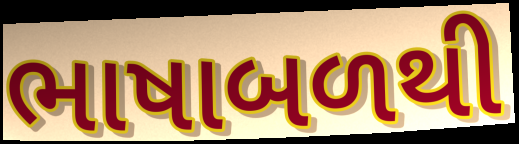
ભાષાબળથી